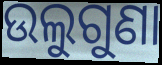
ଉଲୁଗୁଣା